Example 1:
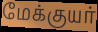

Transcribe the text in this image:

மேக்குயர்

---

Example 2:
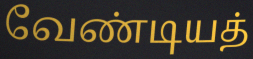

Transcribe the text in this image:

வேண்டியத்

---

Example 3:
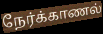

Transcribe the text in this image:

நேர்க்காணல்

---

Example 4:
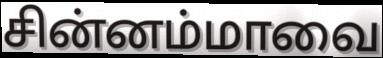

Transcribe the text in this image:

சின்னம்மாவை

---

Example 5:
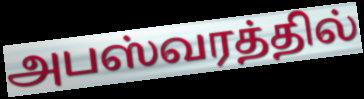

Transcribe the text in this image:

அபஸ்வரத்தில்